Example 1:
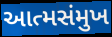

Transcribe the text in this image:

આત્મસંમુખ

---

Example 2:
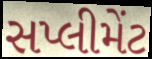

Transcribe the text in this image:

સપ્લીમેંટ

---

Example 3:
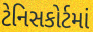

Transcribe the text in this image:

ટેનિસકોર્ટમાં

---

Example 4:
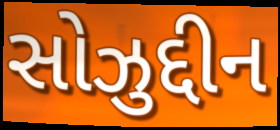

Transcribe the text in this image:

સોઝુદ્દીન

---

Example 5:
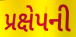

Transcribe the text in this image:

પ્રક્ષેપની